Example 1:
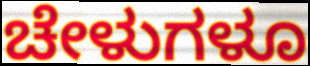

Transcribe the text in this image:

ಚೇಳುಗಳೂ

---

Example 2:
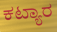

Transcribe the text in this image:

ಕಟ್ಯಾರ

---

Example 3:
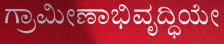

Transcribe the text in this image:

ಗ್ರಾಮೀಣಾಭಿವೃದ್ಧಿಯೇ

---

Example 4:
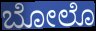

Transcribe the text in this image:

ಬೋಲೊ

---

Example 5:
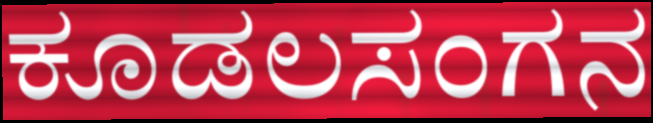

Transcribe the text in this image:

ಕೂಡಲಸಂಗನ